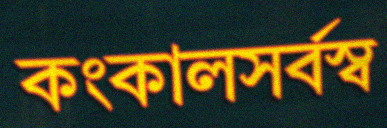
কংকালসর্বস্ব